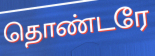
தொண்டரே